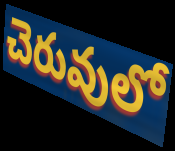
చెరువులో